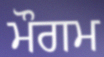
ਮੌਗਮ